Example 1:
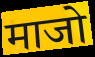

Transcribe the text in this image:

माजो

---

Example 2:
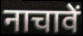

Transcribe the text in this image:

नाचावें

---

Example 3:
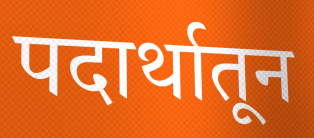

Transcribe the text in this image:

पदार्थातून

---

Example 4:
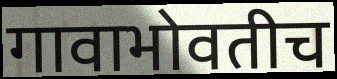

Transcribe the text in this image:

गावाभोवतीच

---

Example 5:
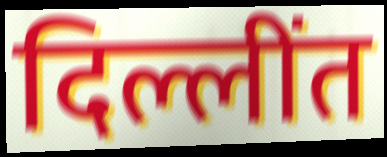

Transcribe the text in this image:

दिल्लींत